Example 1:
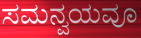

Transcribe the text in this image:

ಸಮನ್ವಯವೂ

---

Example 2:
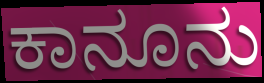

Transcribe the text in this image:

ಕಾನೂನು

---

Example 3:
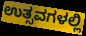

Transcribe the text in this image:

ಉತ್ಸವಗಳಲ್ಲಿ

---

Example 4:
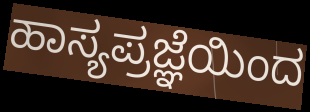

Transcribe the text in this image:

ಹಾಸ್ಯಪ್ರಜ್ಞೆಯಿಂದ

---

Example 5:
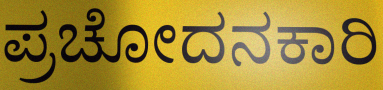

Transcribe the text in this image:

ಪ್ರಚೋದನಕಾರಿ